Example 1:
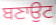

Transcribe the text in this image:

ਬਣਾਉਟ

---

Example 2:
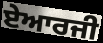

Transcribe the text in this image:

ਏਆਰਜੀ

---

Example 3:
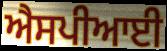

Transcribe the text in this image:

ਐਸਪੀਆਈ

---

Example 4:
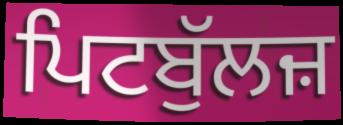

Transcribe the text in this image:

ਪਿਟਬੁੱਲਜ਼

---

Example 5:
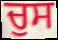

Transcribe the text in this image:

ਚੁਸ